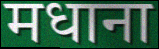
मधाना